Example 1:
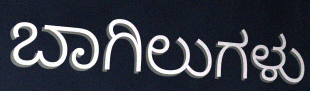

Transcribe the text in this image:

ಬಾಗಿಲುಗಳು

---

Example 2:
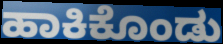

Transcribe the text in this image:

ಹಾಕಿಕೊಂಡು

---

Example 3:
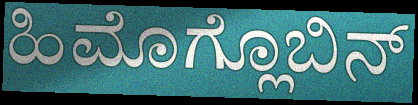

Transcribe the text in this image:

ಹಿಮೊಗ್ಲೊಬಿನ್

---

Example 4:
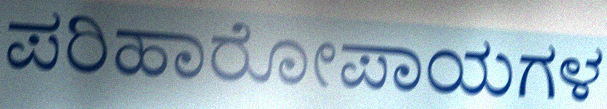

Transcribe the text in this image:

ಪರಿಹಾರೋಪಾಯಗಳ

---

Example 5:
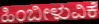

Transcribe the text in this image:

ಹಿಂಬೀಳುವಿಕೆ